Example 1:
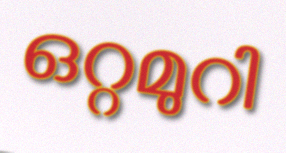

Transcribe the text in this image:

ഒറ്റമുറി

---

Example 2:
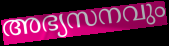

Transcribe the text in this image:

അഭ്യസനവും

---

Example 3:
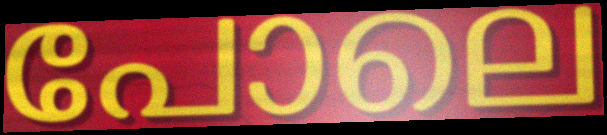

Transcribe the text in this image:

പോലെ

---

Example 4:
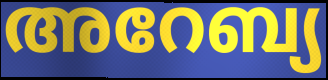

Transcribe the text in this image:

അറേബ്യ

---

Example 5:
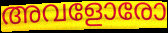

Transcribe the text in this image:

അവളോരോ